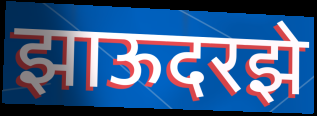
झाऊदरझे